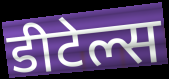
डीटेल्स